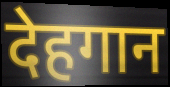
देहगान